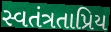
સ્વતંત્રતાપ્રિય